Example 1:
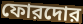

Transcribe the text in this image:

ফোরদোর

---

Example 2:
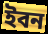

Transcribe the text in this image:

ইবন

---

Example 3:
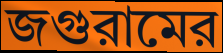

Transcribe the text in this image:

জগুরামের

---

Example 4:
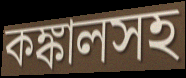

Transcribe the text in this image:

কঙ্কালসহ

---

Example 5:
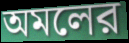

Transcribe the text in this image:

অমলের